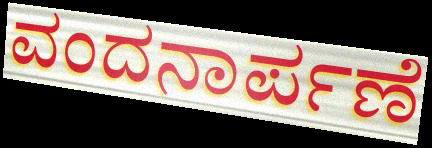
ವಂದನಾರ್ಪಣೆ